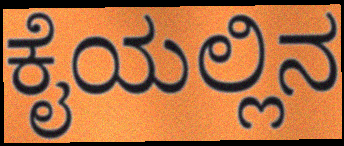
ಕೈಯಲ್ಲಿನ